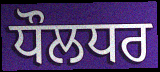
ਧੌਲਧਰ